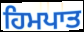
ਹਿਮਪਾਤ